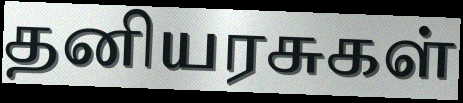
தனியரசுகள்